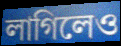
লাগিলেও